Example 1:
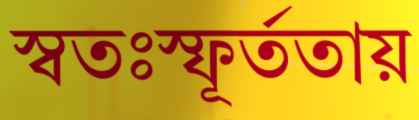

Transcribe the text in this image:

স্বতঃস্ফূর্ততায়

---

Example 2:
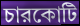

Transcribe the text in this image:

চারকোটি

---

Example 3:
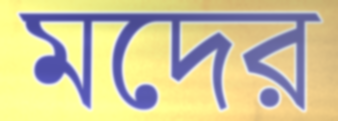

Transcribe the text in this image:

মদের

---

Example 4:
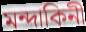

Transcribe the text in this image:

মন্দাকিনী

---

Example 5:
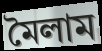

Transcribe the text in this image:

মৈলাম